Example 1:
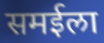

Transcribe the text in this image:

समईला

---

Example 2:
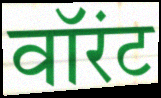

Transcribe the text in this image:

वॉरंट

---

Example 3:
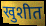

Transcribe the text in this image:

खुशीत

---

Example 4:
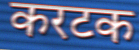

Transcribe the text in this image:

करटक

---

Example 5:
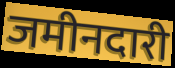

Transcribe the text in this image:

जमीनदारी